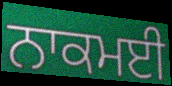
ਨਾਕਮਈ